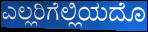
ಎಲ್ಲರಿಗೆಲ್ಲಿಯದೊ